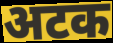
अटक